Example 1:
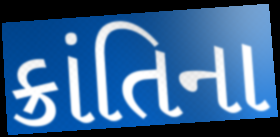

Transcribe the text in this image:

ક્રાંતિના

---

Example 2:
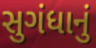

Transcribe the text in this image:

સુગંધાનું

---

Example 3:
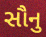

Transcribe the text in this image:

સૌનુ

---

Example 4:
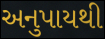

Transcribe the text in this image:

અનુપાયથી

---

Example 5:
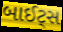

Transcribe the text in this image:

બાઈટ્સ